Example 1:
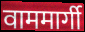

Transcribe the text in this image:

वाममार्गी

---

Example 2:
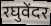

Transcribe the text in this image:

रघुवेंदर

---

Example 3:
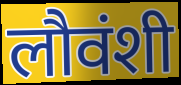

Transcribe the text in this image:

लौवंशी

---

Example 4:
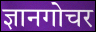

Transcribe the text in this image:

ज्ञानगोचर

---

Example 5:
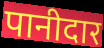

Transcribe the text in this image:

पानीदार